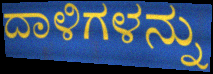
ದಾಳಿಗಳನ್ನು